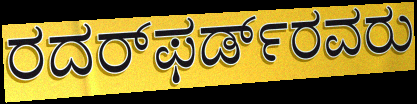
ರದರ್‌ಫರ್ಡ್‌ರವರು